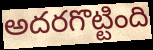
అదరగొట్టింది